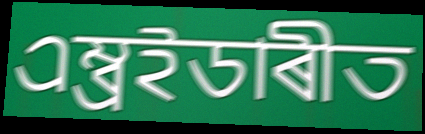
এম্ব্ৰইডাৰীত